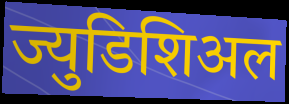
ज्युडिशिअल